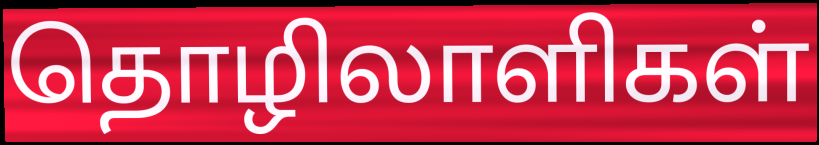
தொழிலாளிகள்